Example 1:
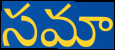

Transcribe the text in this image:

సమా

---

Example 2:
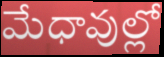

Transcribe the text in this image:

మేధావుల్లో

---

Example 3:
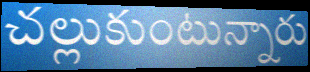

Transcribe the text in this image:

చల్లుకుంటున్నారు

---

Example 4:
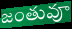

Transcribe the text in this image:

జంతువూ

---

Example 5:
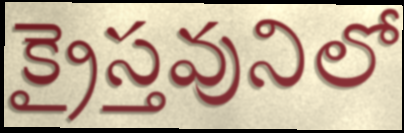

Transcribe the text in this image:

క్రైస్తవునిలో